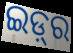
ଇଡ଼୍‍ର